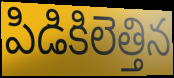
పిడికిలెత్తిన